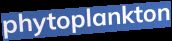
phytoplankton